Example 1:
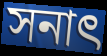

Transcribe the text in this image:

সনাৎ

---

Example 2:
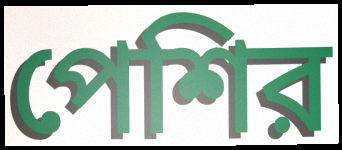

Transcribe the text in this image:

পেশির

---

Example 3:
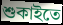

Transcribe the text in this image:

শুকাইতে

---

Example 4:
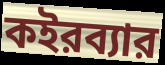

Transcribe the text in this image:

কইরব্যার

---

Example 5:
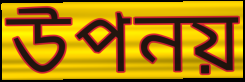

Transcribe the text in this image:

উপনয়